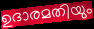
ഉദാരമതിയും